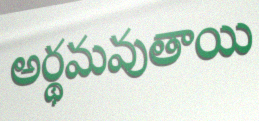
అర్థమవుతాయి